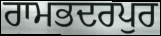
ਰਾਮਭਦਰਪੁਰ